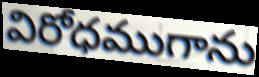
విరోధముగాను